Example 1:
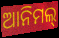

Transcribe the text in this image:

ଆନିମଲ୍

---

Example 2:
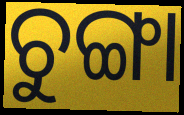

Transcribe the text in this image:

ଚୁଙ୍ଗା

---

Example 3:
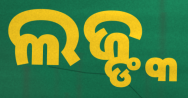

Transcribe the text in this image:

ଲଜ୍ଙ୍କ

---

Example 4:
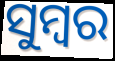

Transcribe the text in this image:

ସୁମ୍ବର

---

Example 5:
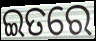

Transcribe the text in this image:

ଇତରେ